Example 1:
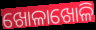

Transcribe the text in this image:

ଖୋଳାଖୋଳି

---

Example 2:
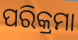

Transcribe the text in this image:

ପରିକ୍ରମା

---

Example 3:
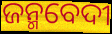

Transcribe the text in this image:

ଜନ୍ମବେଦୀ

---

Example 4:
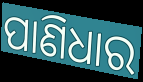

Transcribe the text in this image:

ପାଣିଧାର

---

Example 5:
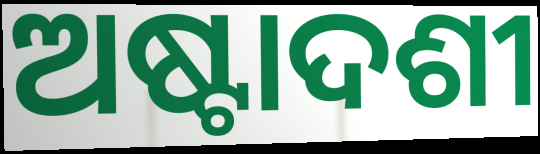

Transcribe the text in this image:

ଅଷ୍ଟାଦଶୀ